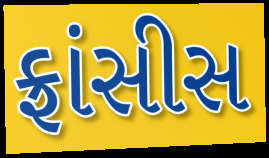
ફ્રાંસીસ